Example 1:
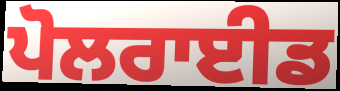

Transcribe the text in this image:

ਪੋਲਰਾਈਡ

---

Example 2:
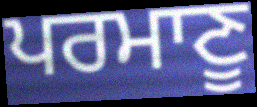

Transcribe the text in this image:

ਪਰਮਾਣੂ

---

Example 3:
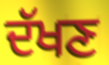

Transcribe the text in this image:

ਦੱਖਣ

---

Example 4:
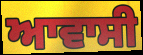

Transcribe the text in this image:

ਆਵਾਸੀ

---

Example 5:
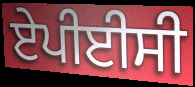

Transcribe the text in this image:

ਏਪੀਈਸੀ